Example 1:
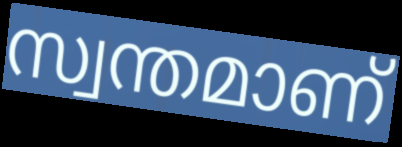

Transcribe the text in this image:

സ്വന്തമാണ്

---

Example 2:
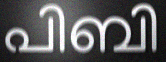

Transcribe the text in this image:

പിബി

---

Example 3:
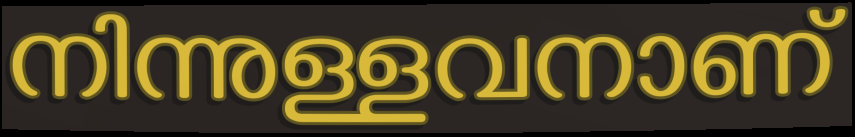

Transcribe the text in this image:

നിന്നുള്ളവനാണ്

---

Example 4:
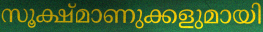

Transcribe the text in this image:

സൂക്ഷ്മാണുക്കളുമായി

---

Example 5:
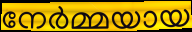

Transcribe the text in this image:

നേർമ്മയായ